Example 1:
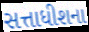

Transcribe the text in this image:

સત્તાધીશના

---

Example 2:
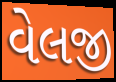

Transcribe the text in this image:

વેલજી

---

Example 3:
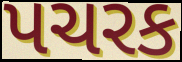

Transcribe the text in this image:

પચરક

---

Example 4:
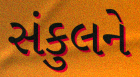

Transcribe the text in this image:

સંકુલને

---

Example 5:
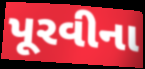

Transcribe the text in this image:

પૂરવીના